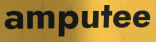
amputee